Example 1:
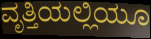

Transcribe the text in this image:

ವೃತ್ತಿಯಲ್ಲಿಯೂ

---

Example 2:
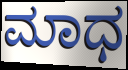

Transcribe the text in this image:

ಮಾಧ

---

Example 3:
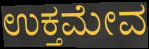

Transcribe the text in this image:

ಉಕ್ತಮೇವ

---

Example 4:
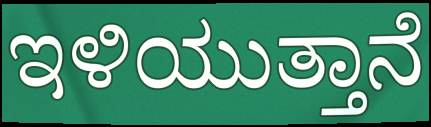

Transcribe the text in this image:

ಇಳಿಯುತ್ತಾನೆ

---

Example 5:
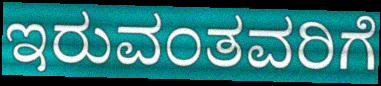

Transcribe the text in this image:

ಇರುವಂತವರಿಗೆ